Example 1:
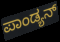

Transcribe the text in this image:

ಪಾಂಡ್ಯನ್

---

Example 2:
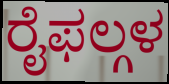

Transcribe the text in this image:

ರೈಫಲ್ಗಳ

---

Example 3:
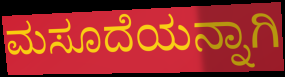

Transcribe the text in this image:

ಮಸೂದೆಯನ್ನಾಗಿ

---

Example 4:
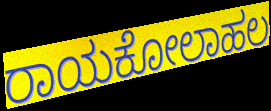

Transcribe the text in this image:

ರಾಯಕೋಲಾಹಲ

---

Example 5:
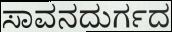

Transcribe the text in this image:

ಸಾವನದುರ್ಗದ